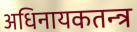
अधिनायकतन्त्र